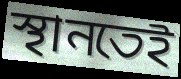
স্থানতেই